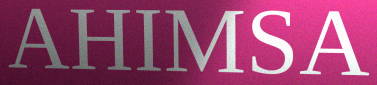
AHIMSA